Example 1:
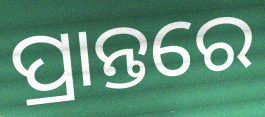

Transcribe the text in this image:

ପ୍ରାନ୍ତରେ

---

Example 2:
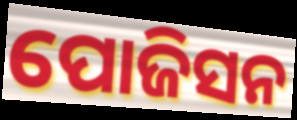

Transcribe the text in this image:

ପୋଜିସନ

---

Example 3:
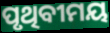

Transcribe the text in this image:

ପୃଥିବୀମୟ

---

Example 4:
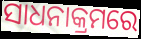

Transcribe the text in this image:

ସାଧନାକ୍ରମରେ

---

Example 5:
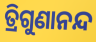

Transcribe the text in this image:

ତ୍ରିଗୁଣାନନ୍ଦ